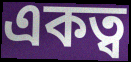
একত্ব